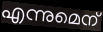
എന്നുമെന്